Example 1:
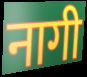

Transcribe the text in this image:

नागी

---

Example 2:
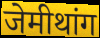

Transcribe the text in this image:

जेमीथांग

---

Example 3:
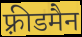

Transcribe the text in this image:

फ़्रीडमैन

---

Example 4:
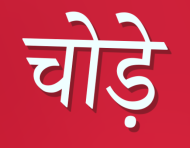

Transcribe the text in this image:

चोड़े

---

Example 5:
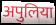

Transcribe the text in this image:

अपुलिया